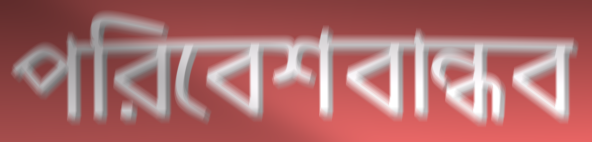
পরিবেশবান্ধব